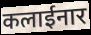
कलाईनार